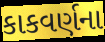
કાકવર્ણના